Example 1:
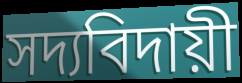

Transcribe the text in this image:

সদ্যবিদায়ী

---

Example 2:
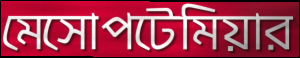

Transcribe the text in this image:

মেসোপটেমিয়ার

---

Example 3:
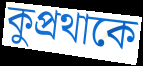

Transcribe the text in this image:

কুপ্রথাকে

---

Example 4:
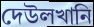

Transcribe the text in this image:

দেউলখানি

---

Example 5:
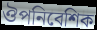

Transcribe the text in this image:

ঔপনিবেশিক